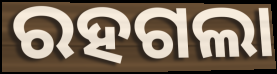
ରହଗଲା